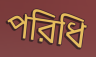
পরিধি